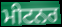
ਮੀਟਨਰ